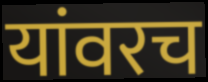
यांवरच